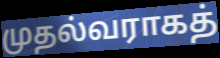
முதல்வராகத்